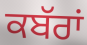
ਕਬੱਰਾਂ